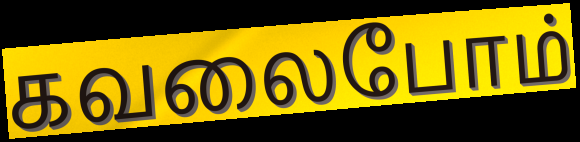
கவலைபோம்